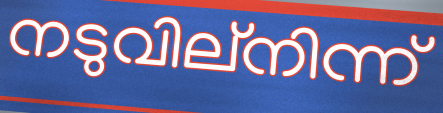
നടുവില്നിന്ന്